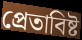
প্রেতাবিষ্ট